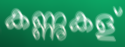
കണ്ണുകള്